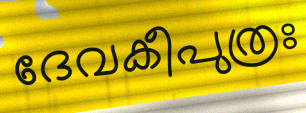
ദേവകീപുത്രഃ